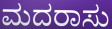
ಮದರಾಸು